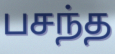
பசந்த